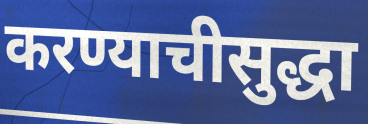
करण्याचीसुद्धा